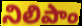
నిలిపాం